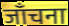
जाँचना